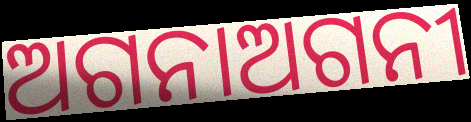
ଅଗନାଅଗନୀ